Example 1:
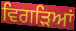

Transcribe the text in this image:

ਵਿਗੜਿਆਂ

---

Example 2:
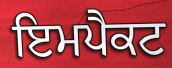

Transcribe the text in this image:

ਇਮਪੈਕਟ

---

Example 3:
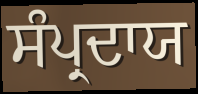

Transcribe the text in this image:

ਸੰਪ੍ਰਦਾਯ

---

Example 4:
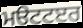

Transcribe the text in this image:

ਮੳਟਟੲਰ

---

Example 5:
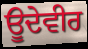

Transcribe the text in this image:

ਊਦੇਵੀਰ